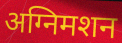
अग्निमशन